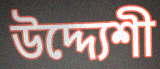
উদ্দ্যেশী